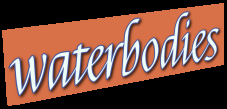
waterbodies